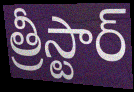
త్రీస్టార్